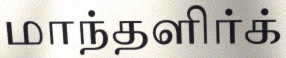
மாந்தளிர்க்